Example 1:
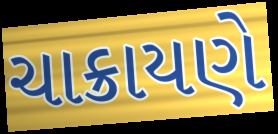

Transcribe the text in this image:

ચાક્રાયણે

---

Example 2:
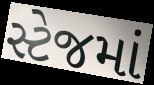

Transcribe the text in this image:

સ્ટેજમાં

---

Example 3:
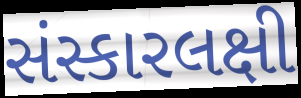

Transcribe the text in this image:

સંસ્કારલક્ષી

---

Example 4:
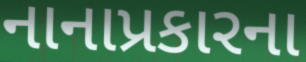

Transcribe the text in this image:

નાનાપ્રકારના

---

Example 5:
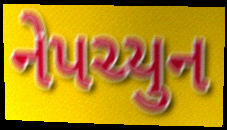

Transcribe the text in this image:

નેપચ્યુન